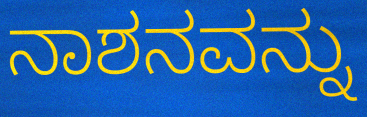
ನಾಶನವನ್ನು